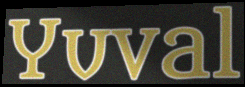
Yuval